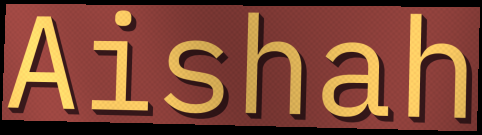
Aishah